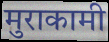
मुराकामी